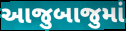
આજુબાજુમાં